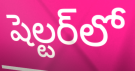
షెల్టర్‌లో